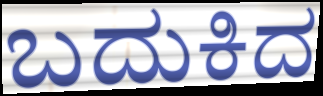
ಬದುಕಿದ